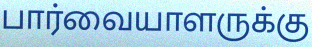
பார்வையாளருக்கு